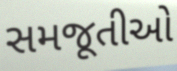
સમજૂતીઓ